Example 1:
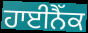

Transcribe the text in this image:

ਹਾਈਨੈੱਕ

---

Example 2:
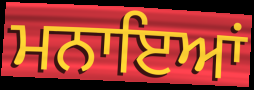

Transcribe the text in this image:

ਮਨਾਇਆਂ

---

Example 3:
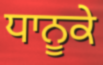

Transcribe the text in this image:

ਧਾਨੂਕੇ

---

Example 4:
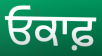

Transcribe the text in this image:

ਓਕਾਫ਼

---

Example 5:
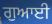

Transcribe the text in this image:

ਗੁਆਈ